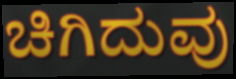
ಚಿಗಿದುವು